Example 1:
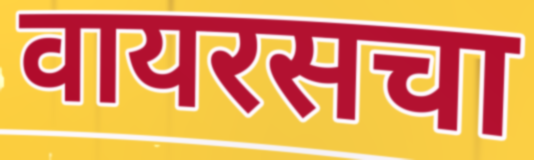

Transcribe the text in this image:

वायरसचा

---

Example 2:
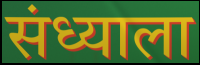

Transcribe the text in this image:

संध्याला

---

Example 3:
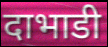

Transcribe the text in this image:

दाभाडी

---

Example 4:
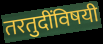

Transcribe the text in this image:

तरतुदींविषयी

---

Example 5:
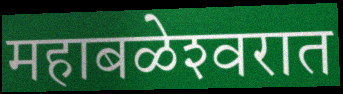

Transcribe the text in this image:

महाबळेश्वरात